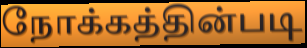
நோக்கத்தின்படி